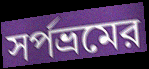
সর্পভ্রমের